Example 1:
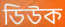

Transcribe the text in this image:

ডিউক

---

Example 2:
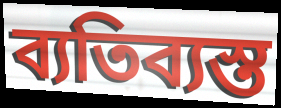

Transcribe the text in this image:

ব্যতিব্যস্ত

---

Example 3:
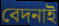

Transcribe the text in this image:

বেদনাই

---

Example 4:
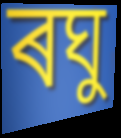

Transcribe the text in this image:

ৰঘু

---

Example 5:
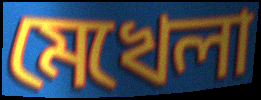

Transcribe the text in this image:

মেখেলা